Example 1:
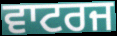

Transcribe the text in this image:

ਵਾਟਰਜ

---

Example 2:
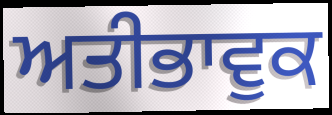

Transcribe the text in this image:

ਅਤੀਭਾਵੁਕ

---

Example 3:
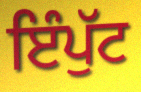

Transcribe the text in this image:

ਇੰਪੁੱਟ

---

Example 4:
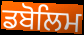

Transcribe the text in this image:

ਡਬੋਲਿਮ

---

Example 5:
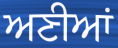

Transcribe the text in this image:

ਅਣੀਆਂ